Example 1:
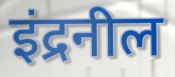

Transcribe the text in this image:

इंद्रनील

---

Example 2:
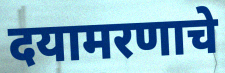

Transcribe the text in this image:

दयामरणाचे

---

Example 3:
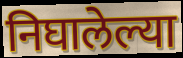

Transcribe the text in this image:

निघालेल्या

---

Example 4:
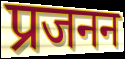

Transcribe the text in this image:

प्रजनन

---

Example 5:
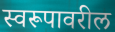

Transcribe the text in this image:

स्वरूपावरील